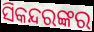
ସିକନ୍ଦରଙ୍କର